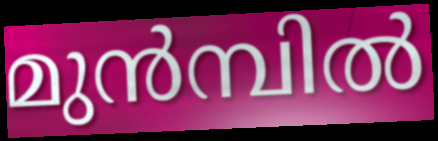
മുൻമ്പിൽ